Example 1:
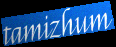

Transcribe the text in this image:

tamizhum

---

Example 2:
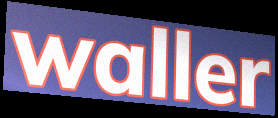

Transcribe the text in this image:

waller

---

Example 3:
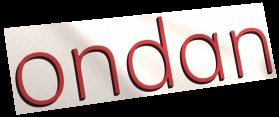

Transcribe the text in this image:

ondan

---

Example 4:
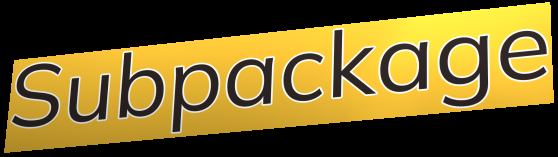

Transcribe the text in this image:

Subpackage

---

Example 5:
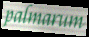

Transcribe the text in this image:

palmarum